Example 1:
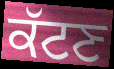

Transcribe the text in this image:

ਕੱਟਣ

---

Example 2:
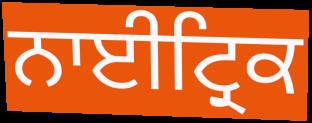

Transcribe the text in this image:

ਨਾਈਟ੍ਰਿਕ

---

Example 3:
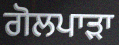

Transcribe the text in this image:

ਗੋਲਪਾੜਾ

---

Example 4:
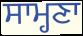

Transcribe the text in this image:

ਸਾਮ੍ਹਣਾ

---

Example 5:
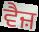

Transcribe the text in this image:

ਵੈਜ਼